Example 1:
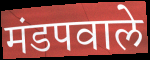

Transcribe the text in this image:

मंडपवाले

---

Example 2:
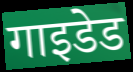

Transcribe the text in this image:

गाइडेड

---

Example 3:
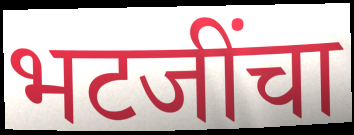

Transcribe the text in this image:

भटजींचा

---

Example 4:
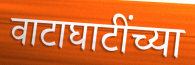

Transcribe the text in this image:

वाटाघाटींच्या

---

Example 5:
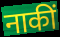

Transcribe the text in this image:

नाकीं